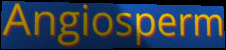
Angiosperm